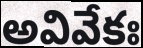
అవివేకః